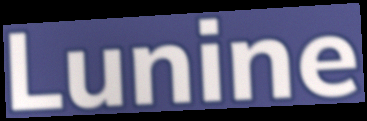
Lunine